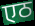
एठ